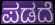
ಪಡದೆ